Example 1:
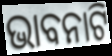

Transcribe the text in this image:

ଭାବନାଟି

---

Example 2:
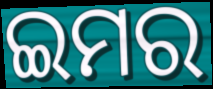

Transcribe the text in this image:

ଇମର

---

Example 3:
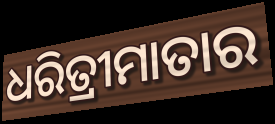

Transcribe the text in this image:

ଧରିତ୍ରୀମାତାର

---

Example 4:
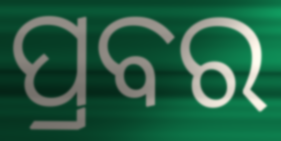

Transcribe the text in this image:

ପ୍ରବର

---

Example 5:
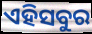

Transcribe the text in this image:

ଏହିସବୁର